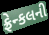
ફ્રેન્કલની